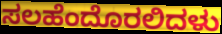
ಸಲಹೆಂದೊರಲಿದಳು